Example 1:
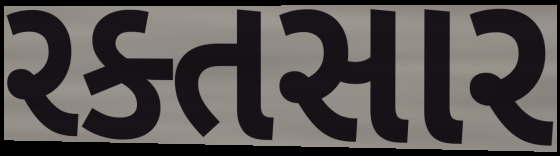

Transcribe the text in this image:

રક્તસાર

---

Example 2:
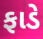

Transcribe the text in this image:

ફાડે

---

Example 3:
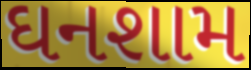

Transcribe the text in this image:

ઘનશામ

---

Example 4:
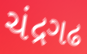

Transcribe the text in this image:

ચંદ્રગઢ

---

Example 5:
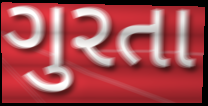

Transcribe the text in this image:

ગુરતા